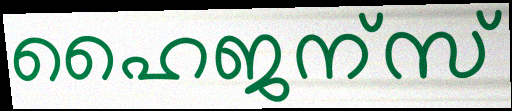
ഹൈജന്സ്